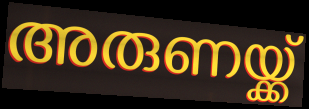
അരുണയ്ക്ക്